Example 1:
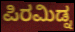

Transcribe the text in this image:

ಪಿರಮಿಡ್ನ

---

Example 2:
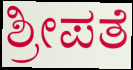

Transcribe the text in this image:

ಶ್ರೀಪತೆ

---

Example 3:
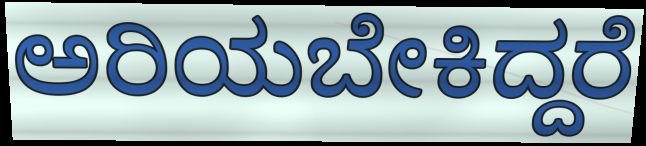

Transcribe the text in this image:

ಅರಿಯಬೇಕಿದ್ದರೆ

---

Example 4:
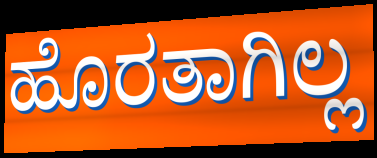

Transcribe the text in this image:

ಹೊರತಾಗಿಲ್ಲ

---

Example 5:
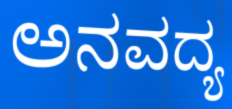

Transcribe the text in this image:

ಅನವದ್ಯ